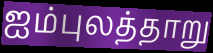
ஐம்புலத்தாறு